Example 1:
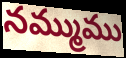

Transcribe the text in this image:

నమ్ముము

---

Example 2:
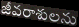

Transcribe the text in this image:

జీవరాశులను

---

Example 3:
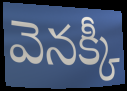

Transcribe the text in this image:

వెనక్కీ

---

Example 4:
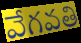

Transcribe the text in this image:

వేగవతి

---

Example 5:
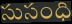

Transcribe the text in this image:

సుసంధి